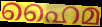
ഹൈമ